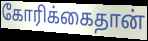
கோரிக்கைதான்